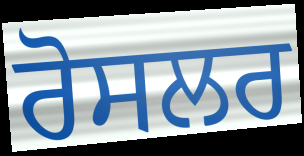
ਰੋਸਲਰ